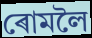
ৰোমলৈ